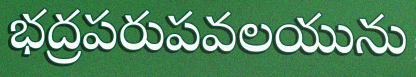
భద్రపరుపవలయును